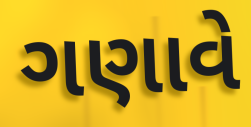
ગણાવે